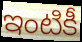
ఇంటికీ